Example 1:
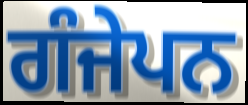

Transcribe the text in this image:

ਗੰਜੇਪਨ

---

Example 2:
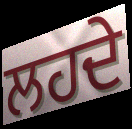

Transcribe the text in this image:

ਲਹਦੇ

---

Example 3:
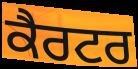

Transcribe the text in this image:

ਕੈਰਟਰ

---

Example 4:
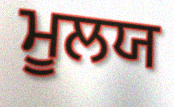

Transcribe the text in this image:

ਮੂਲਯ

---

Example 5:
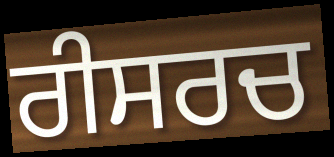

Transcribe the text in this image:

ਰੀਸਰਚ